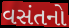
વસંતનો